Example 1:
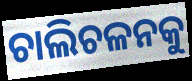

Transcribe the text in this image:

ଚାଲିଚଳନକୁ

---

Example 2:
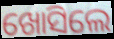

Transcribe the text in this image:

ଖୋସିଲେ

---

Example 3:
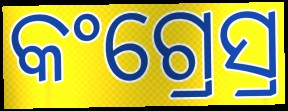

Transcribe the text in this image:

କଂଗ୍ରେସ୍ର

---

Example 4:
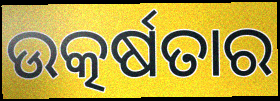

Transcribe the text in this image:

ଉତ୍କର୍ଷତାର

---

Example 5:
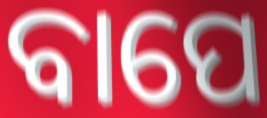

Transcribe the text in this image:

ବାପେ